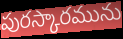
పురస్కారమును